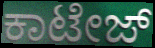
ಕಾಟೇಜ್